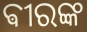
ଵୀରଙ୍କ